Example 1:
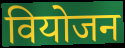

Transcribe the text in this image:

वियोजन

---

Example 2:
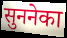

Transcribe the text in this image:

सुननेका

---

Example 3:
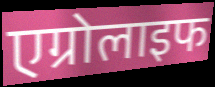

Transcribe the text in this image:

एग्रोलाइफ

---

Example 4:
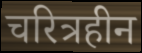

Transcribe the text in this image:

चरित्रहीन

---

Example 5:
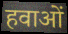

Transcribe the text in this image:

हवाओं